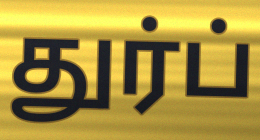
துர்ப்